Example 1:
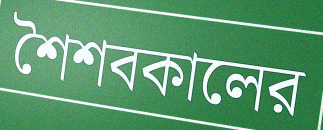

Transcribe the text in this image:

শৈশবকালের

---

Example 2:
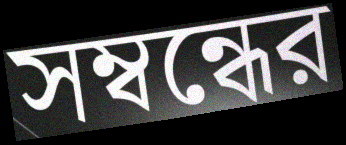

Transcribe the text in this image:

সম্বন্ধের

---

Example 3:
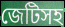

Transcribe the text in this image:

জেটিসহ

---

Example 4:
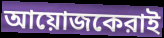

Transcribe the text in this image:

আয়োজকেরাই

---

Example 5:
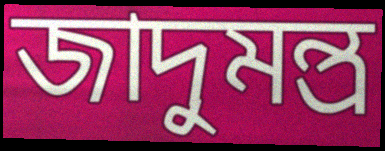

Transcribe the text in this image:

জাদুমন্ত্র